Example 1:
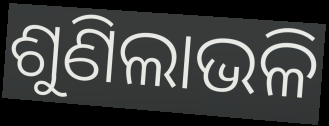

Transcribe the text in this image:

ଶୁଣିଲାଭଳି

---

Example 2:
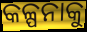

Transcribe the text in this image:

କଳ୍ପନାକୁ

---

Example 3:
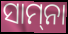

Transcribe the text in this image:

ସାମ୍‍ନା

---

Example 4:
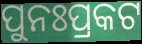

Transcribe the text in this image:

ପୁନଃପ୍ରକଟ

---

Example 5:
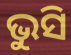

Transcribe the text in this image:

ଭୁସି